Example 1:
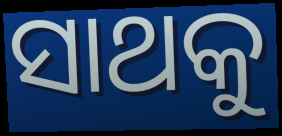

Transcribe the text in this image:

ସାଥକୁ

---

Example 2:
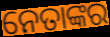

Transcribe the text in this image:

ନେତାଙ୍କର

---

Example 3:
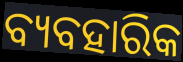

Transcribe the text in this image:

ବ୍ଯବହାରିକ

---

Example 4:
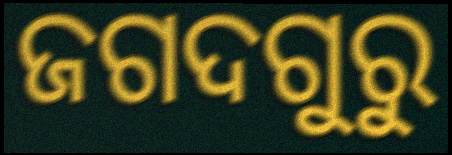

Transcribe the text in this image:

ଜଗଦଗୁରୁ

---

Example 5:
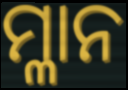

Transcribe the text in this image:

ମ୍ଳାନ